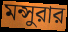
মন্সুরার